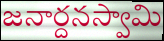
జనార్దనస్వామి